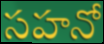
సహనో